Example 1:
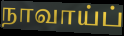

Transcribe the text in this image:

நாவாய்ப்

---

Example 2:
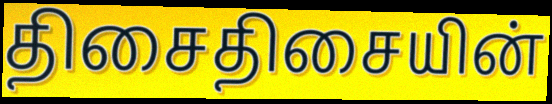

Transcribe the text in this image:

திசைதிசையின்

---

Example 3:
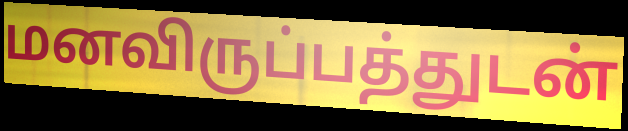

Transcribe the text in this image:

மனவிருப்பத்துடன்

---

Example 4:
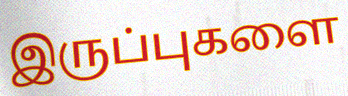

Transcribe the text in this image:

இருப்புகளை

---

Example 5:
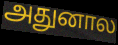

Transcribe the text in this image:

அதுனால